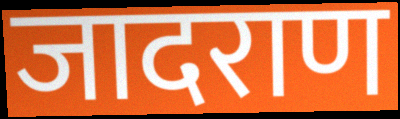
जादराण